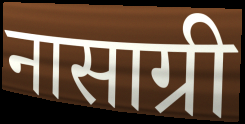
नासाग्री